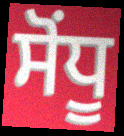
ਸੋਂਧੂ